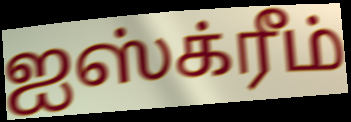
ஐஸ்க்ரீம்